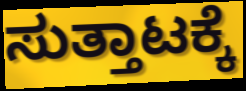
ಸುತ್ತಾಟಕ್ಕೆ